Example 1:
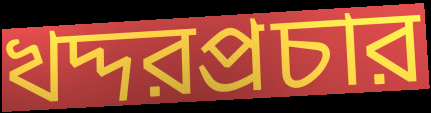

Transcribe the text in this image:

খদ্দরপ্রচার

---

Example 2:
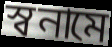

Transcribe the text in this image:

স্বনামে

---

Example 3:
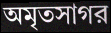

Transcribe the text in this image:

অমৃতসাগর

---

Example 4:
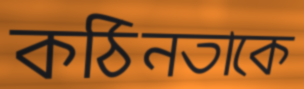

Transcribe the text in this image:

কঠিনতাকে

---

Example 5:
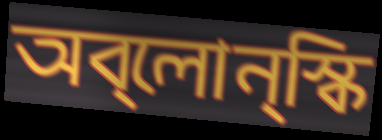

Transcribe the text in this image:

অব্‌লোন্‌স্কি